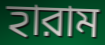
হারাম